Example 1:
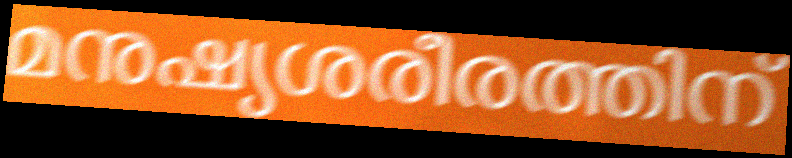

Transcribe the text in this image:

മനുഷ്യശരീരത്തിന്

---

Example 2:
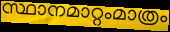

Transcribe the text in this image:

സ്ഥാനമാറ്റംമാത്രം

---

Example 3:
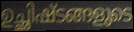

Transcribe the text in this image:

ഉച്ഛിഷ്ടങ്ങളുടെ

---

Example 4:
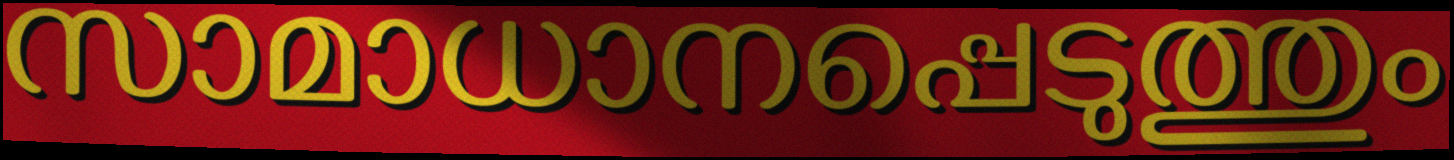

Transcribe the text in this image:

സാമാധാനപ്പെടുത്തും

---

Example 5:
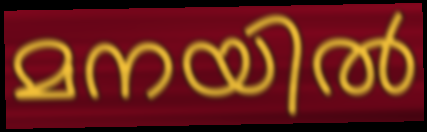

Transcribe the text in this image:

മനയിൽ